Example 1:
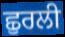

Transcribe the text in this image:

ਛੁਰਲੀ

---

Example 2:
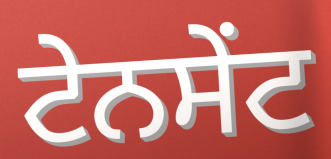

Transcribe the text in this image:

ਟੇਨਸੇਂਟ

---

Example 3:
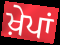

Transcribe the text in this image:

ਖ਼ੇਪਾਂ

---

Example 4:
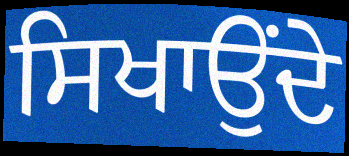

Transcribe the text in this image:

ਸਿਖਾਉਂਦੇ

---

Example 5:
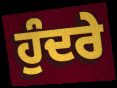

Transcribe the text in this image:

ਹੁੰਦਰੇ